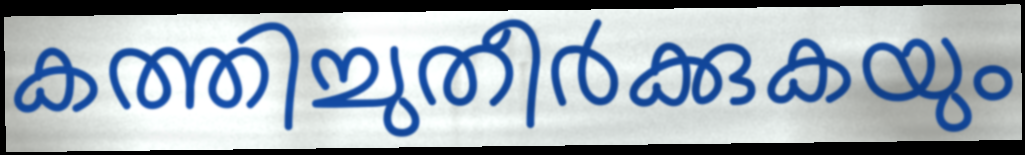
കത്തിച്ചുതീർക്കുകയും